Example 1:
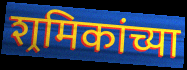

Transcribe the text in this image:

श्रमिकांच्या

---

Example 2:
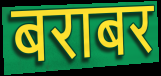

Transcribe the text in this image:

बराबर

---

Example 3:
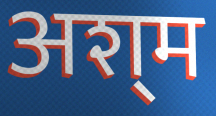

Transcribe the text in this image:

अश्म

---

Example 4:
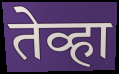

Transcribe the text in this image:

तेव्हा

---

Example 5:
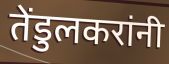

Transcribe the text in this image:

तेंडुलकरांनी